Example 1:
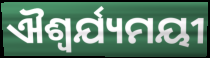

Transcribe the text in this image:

ଐଶ୍ୱର୍ଯ୍ୟମୟୀ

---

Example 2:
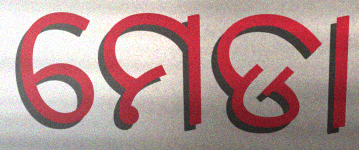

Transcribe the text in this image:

ମେଡା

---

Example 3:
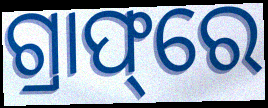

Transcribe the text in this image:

ଗ୍ରାଫ୍‌ରେ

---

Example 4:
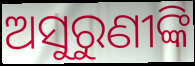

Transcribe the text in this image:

ଅସୁରୁଣୀଙ୍କି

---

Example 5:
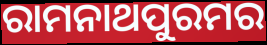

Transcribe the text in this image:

ରାମନାଥପୁରମର